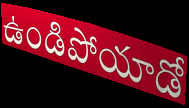
ఉండిపోయాడో